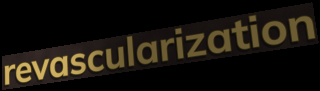
revascularization